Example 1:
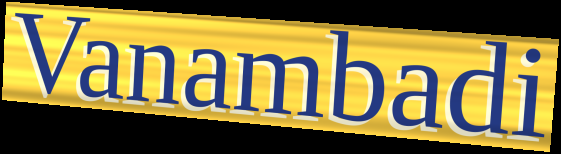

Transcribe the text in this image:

Vanambadi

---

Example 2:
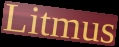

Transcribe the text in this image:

Litmus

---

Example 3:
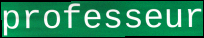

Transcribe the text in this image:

professeur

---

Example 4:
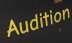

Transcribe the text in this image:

Audition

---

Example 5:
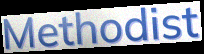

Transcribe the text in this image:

Methodist